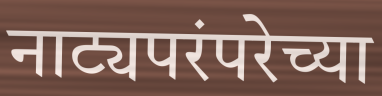
नाट्यपरंपरेच्या